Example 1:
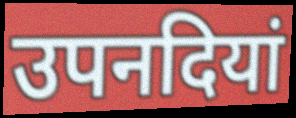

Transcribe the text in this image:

उपनदियां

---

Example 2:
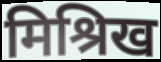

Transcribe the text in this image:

मिश्रिख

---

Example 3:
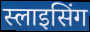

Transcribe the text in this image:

स्लाइसिंग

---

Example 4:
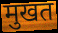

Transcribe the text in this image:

मुखत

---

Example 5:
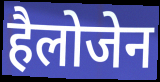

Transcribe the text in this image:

हैलोजेन